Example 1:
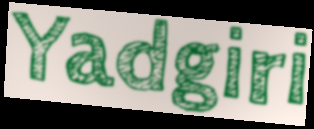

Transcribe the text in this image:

Yadgiri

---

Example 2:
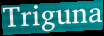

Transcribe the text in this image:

Triguna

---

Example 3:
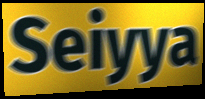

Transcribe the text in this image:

Seiyya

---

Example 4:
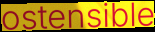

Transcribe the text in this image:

ostensible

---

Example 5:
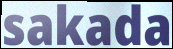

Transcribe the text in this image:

sakada